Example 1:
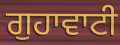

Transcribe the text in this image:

ਗੁਹਾਵਾਟੀ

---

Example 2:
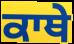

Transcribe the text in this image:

ਕਾਥੇ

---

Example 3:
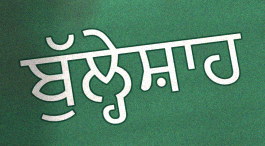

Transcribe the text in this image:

ਬੁੱਲ੍ਹੇਸ਼ਾਹ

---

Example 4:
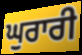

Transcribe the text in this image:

ਘੁਰਾਰੀ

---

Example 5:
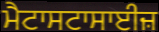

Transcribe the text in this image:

ਮੈਟਾਸਟਾਸਾਈਜ਼